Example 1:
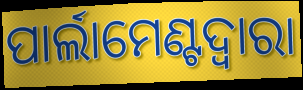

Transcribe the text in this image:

ପାର୍ଲାମେଣ୍ଟଦ୍ୱାରା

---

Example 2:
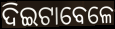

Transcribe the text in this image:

ଦିଇଟାବେଳେ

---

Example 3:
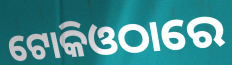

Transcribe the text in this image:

ଟୋକିଓଠାରେ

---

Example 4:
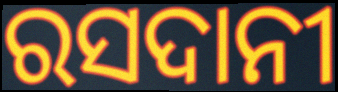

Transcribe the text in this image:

ରସଦାନୀ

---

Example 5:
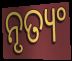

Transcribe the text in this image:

ନୃତ୍ୟଂ